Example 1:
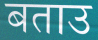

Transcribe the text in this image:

बताउ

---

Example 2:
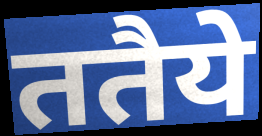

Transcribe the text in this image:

ततैये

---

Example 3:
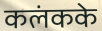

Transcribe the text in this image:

कलंकके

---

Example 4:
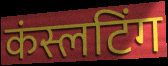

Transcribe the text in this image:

कंस्लटिंग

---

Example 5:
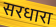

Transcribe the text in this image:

सरधारा